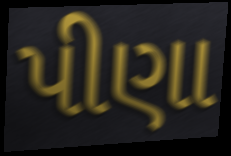
પીણા